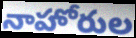
నాహోరుల